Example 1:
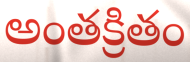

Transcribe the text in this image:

అంతక్రితం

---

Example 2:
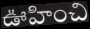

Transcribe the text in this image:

ఊహించి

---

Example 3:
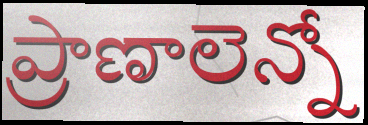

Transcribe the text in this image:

ప్రాణాలెన్నో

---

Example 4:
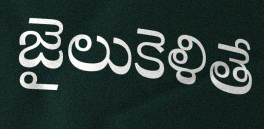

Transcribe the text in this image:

జైలుకెళితే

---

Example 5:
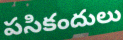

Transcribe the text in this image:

పసికందులు